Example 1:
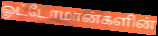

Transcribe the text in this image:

ஓட்டோமான்களின்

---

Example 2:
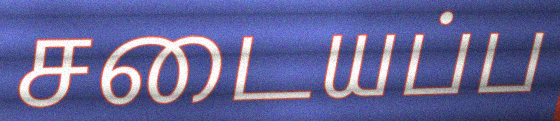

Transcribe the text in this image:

சடையப்ப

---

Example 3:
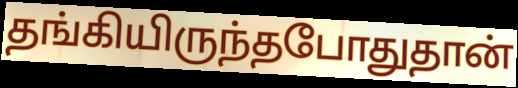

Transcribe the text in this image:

தங்கியிருந்தபோதுதான்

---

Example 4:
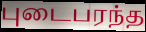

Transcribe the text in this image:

புடைபரந்த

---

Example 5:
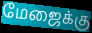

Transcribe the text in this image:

மேஜைக்கு